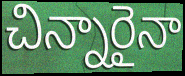
చిన్నారైనా